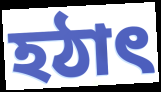
হঠাৎ